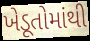
ખેડૂતોમાંથી